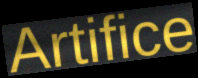
Artifice